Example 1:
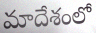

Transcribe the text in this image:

మాదేశంలో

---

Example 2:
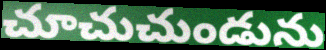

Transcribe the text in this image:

చూచుచుండును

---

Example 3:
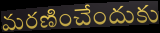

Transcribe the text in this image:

మరణించేందుకు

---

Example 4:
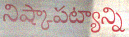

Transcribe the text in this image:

నిష్కాపట్యాన్ని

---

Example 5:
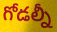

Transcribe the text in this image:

గోడల్నీ